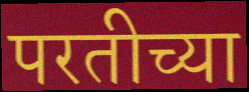
परतीच्या